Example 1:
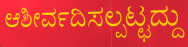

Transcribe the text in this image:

ಆಶೀರ್ವದಿಸಲ್ಪಟ್ಟದ್ದು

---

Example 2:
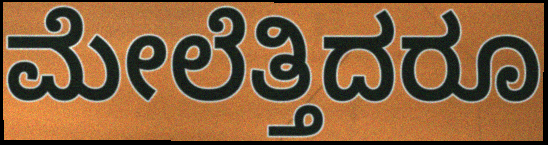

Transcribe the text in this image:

ಮೇಲೆತ್ತಿದರೂ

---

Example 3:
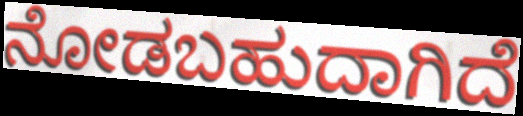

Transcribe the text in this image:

ನೋಡಬಹುದಾಗಿದೆ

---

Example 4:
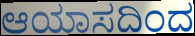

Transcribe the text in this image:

ಆಯಾಸದಿಂದ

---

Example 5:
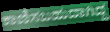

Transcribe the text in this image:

ಕಾಣಿಸಬಹುದಾಗಿದ್ದ